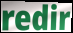
redir